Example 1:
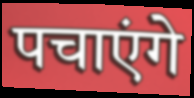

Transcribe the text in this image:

पचाएंगे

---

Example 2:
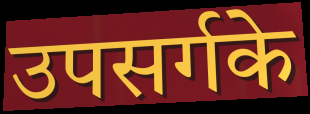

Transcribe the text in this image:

उपसर्गके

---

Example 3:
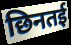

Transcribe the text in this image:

छिनतई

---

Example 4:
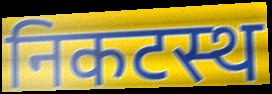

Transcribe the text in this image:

निकटस्थ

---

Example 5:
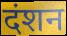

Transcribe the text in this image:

दंशन